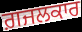
ਗ਼ਜਲਕਾਰ